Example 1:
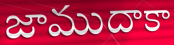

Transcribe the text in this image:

జాముదాకా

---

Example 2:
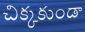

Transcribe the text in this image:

చిక్కకుండా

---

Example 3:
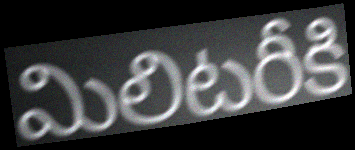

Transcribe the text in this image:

మిలిటరీకి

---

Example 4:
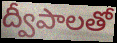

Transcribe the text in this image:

ద్వీపాలతో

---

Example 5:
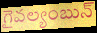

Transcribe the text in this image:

గైవల్యంబున్